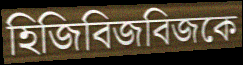
হিজিবিজবিজকে